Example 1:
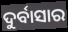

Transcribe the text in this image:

ଦୁର୍ବାସାର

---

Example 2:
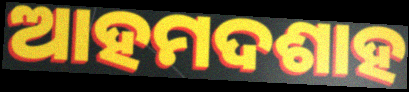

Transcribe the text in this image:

ଆହମଦଶାହ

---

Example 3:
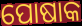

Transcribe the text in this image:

ପୋଷାକ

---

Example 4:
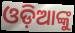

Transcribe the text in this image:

ଓଡ଼ିଆଙ୍କୁ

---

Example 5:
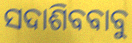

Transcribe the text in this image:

ସଦାଶିବବାବୁ